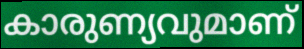
കാരുണ്യവുമാണ്